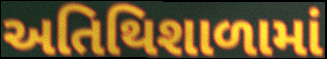
અતિથિશાળામાં